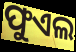
ଫୁଏଲ